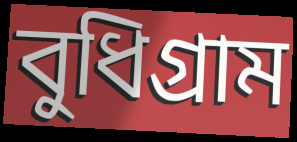
বুধিগ্রাম